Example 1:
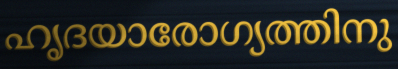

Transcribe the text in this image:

ഹൃദയാരോഗ്യത്തിനു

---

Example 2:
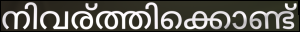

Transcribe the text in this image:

നിവര്ത്തിക്കൊണ്ട്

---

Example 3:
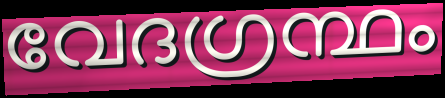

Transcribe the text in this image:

വേദഗ്രന്ഥം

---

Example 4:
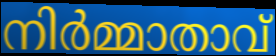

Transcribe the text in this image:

നിർമ്മാതാവ്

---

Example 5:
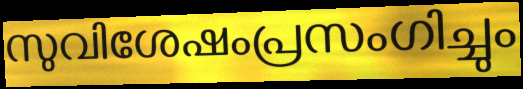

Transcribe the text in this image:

സുവിശേഷംപ്രസംഗിച്ചും